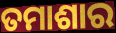
ତମାଶାର